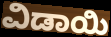
ವಿಡಾಯಿ